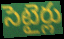
సెటైర్లు